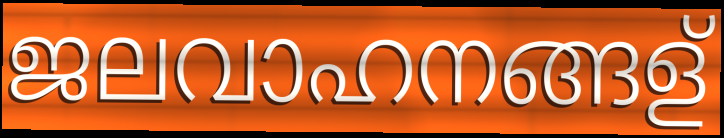
ജലവാഹനങ്ങള്